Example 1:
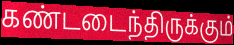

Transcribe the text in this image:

கண்டடைந்திருக்கும்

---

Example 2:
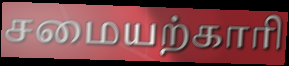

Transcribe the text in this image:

சமையற்காரி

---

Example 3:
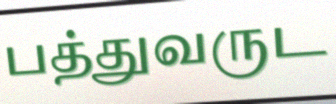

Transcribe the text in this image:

பத்துவருட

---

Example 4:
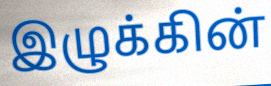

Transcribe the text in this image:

இழுக்கின்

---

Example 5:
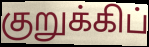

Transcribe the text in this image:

குறுக்கிப்